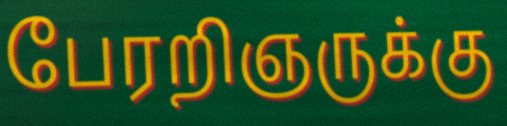
பேரறிஞருக்கு